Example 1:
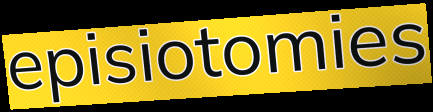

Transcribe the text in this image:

episiotomies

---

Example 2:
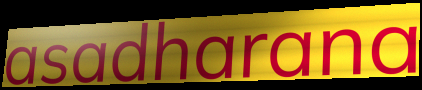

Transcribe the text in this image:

asadharana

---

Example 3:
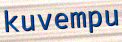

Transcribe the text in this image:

kuvempu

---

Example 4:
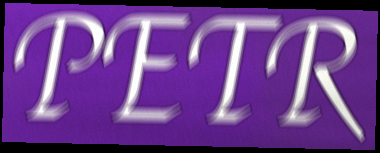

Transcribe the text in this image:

PETR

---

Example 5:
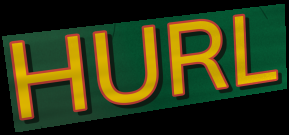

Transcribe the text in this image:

HURL